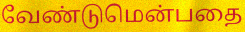
வேண்டுமென்பதை